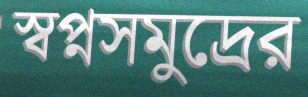
স্বপ্নসমুদ্রের